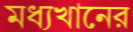
মধ্যখানের